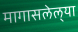
मागासलेल्या